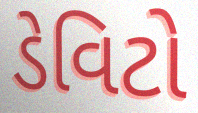
ડેવિટો